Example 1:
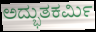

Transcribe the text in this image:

ಅದ್ಭುತಕರ್ಮಿ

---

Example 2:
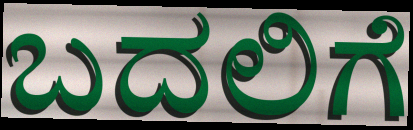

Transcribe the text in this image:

ಬದಲಿಗೆ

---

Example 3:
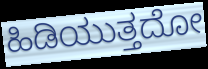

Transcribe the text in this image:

ಹಿಡಿಯುತ್ತದೋ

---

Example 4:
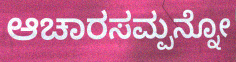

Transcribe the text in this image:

ಆಚಾರಸಮ್ಪನ್ನೋ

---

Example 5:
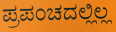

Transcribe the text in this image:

ಪ್ರಪಂಚದಲ್ಲಿಲ್ಲ